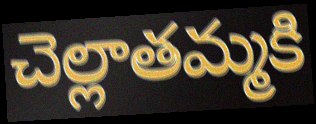
చెల్లాతమ్మకి